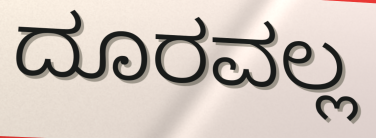
ದೂರವಲ್ಲ